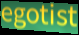
egotist